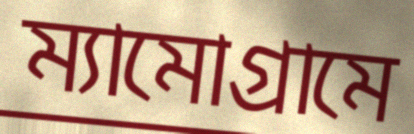
ম্যামোগ্রামে